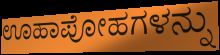
ಊಹಾಪೋಹಗಳನ್ನು